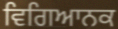
ਵਿਗਿਆਨਕ